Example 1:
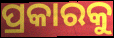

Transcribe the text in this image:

ପ୍ରକାରକୁ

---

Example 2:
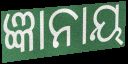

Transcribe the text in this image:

ଜ୍ଞାନାୟ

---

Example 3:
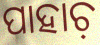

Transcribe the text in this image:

ପାହାଚ଼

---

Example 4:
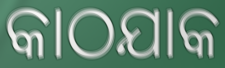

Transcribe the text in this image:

କାଠଯାକ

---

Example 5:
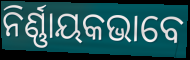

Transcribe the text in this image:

ନିର୍ଣ୍ଣାୟକଭାବେ